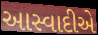
આસ્વાદીએ